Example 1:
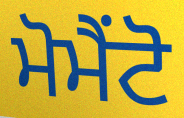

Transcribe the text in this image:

ਮੋਮੈਂਟੋ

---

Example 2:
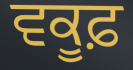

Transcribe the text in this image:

ਵਕੂਫ਼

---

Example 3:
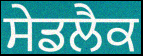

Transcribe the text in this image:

ਸੇਡਲੈਕ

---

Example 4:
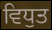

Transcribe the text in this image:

ਵਿਧੁਤ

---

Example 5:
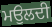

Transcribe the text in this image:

ਮਉਲਦੀ